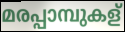
മരപ്പാമ്പുകള്